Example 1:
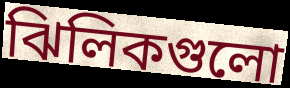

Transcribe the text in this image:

ঝিলিকগুলো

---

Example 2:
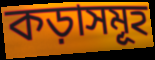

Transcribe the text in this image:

কড়াসমূহ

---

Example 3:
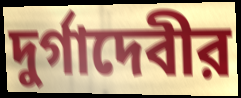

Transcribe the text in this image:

দুর্গাদেবীর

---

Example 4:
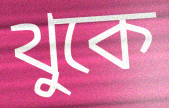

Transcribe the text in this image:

থুকে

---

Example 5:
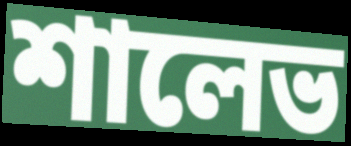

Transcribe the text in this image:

শালেভ